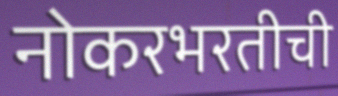
नोकरभरतीची